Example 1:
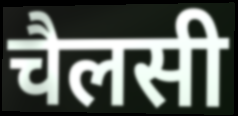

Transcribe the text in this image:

चैलसी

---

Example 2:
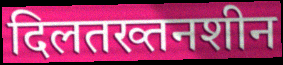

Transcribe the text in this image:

दिलतख्तनशीन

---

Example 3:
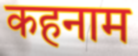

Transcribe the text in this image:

कहनाम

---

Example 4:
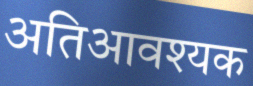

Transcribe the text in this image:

अतिआवश्यक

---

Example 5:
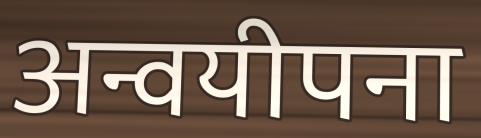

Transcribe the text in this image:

अन्वयीपना